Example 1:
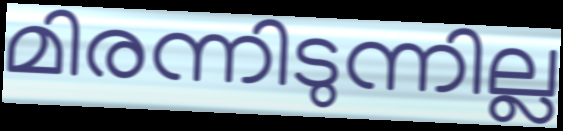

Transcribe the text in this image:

മിരന്നിടുന്നില്ല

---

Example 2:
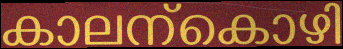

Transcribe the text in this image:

കാലന്കൊഴി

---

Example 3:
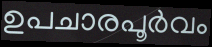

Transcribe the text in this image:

ഉപചാരപൂർവം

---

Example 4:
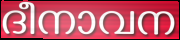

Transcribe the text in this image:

ദീനാവന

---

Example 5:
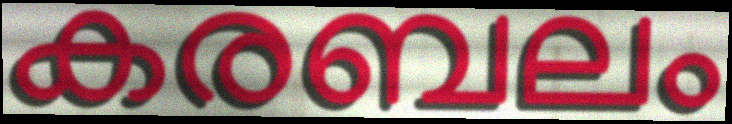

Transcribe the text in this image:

കരബലം